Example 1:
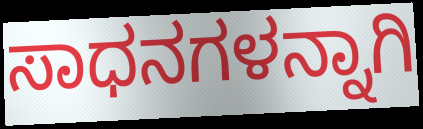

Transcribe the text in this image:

ಸಾಧನಗಳನ್ನಾಗಿ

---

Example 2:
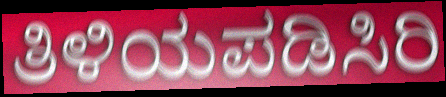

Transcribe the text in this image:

ತಿಳಿಯಪಡಿಸಿರಿ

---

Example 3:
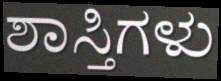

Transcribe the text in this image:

ಶಾಸ್ತಿಗಳು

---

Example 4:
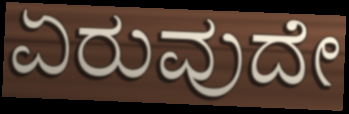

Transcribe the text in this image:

ಏರುವುದೇ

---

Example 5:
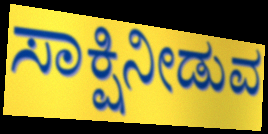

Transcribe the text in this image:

ಸಾಕ್ಷಿನೀಡುವ